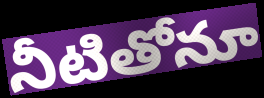
నీటితోనూ